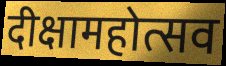
दीक्षामहोत्सव